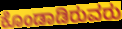
ಕೊಂಡಾಡಿರುವರು